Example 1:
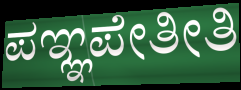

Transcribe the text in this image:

ಪಞ್ಞಪೇತೀತಿ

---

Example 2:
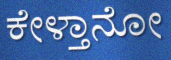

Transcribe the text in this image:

ಕೇಳ್ತಾನೋ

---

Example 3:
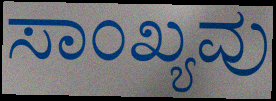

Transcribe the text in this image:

ಸಾಂಖ್ಯವು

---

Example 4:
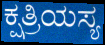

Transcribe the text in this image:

ಕ್ಷತ್ರಿಯಸ್ಯ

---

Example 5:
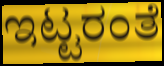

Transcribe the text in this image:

ಇಟ್ಟರಂತೆ